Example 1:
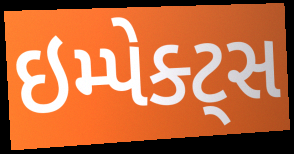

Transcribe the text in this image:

ઇમ્પેક્ટ્સ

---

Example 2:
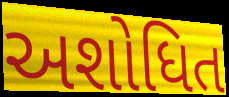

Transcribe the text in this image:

અશોધિત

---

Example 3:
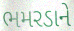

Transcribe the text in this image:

ભમરડાને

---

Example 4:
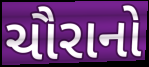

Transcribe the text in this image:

ચૌરાનો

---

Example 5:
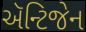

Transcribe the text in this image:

ઍન્ટિજેન